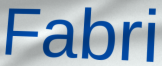
Fabri